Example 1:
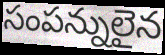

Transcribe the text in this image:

సంపన్నులైన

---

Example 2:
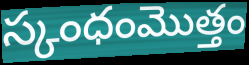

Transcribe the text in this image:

స్కంధంమొత్తం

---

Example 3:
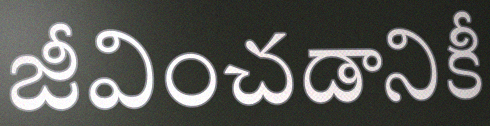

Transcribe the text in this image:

జీవించడానికీ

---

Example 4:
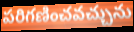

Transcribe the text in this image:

పరిగణించవచ్చును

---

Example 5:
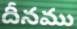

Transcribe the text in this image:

దీనము